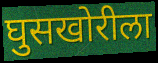
घुसखोरीला